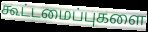
கூட்டமைப்புகளை